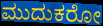
ಮುದುಕರೋ